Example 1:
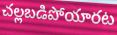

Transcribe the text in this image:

చల్లబడిపోయారట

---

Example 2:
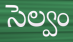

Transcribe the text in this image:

సెల్వం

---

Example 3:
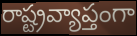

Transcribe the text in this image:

రాష్ట్రవ్యాప్తంగా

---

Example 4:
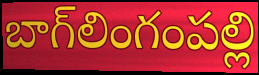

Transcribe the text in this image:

బాగ్‌లింగంపల్లి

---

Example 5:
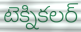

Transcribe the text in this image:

టెక్నికలర్